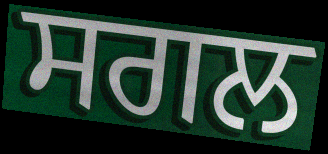
ਸਗਲ